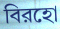
বিরহো